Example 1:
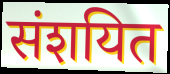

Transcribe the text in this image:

संशयित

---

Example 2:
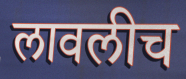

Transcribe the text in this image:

लावलीच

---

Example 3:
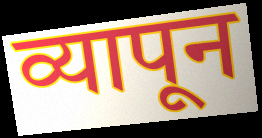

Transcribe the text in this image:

व्यापून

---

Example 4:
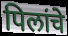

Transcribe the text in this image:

पिलांचे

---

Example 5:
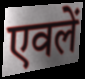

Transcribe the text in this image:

एवलें